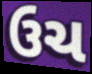
ઉચ